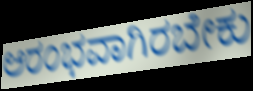
ಆರಂಭವಾಗಿರಬೇಕು